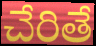
చేరితే